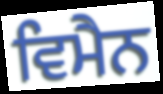
ਵਿਮੈਨ